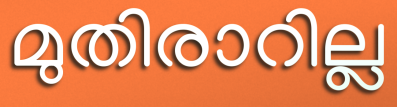
മുതിരാറില്ല